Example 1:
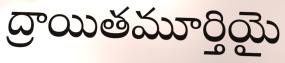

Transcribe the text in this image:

ద్రాయితమూర్తియై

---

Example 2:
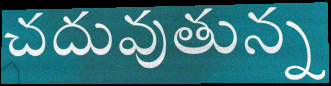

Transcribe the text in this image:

చదువుతున్న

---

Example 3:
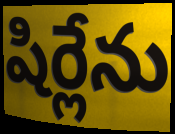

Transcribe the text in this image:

షిర్లేను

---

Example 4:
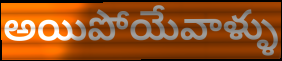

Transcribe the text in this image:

అయిపోయేవాళ్ళు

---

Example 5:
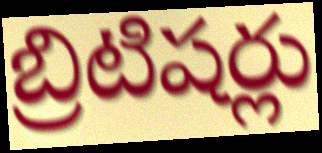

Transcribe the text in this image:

బ్రిటిషర్లు